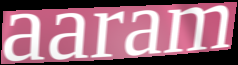
aaram